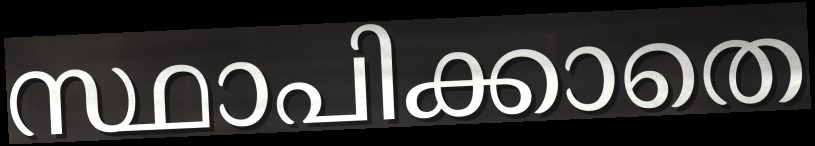
സ്ഥാപിക്കാതെ